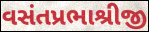
વસંતપ્રભાશ્રીજી